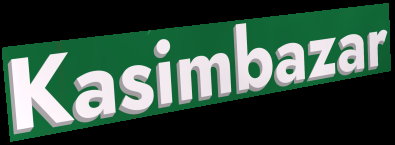
Kasimbazar